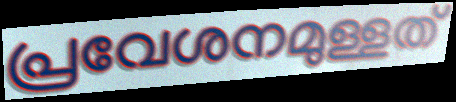
പ്രവേശനമുള്ളത്